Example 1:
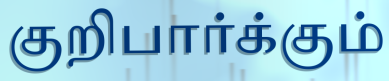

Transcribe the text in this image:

குறிபார்க்கும்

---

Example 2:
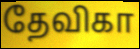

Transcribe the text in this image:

தேவிகா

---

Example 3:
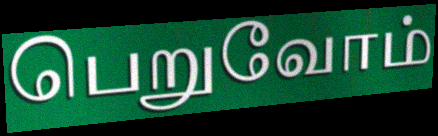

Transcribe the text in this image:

பெறுவோம்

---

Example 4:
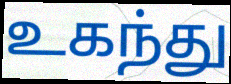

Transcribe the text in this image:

உகந்து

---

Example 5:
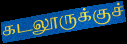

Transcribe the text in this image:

கடலூருக்குச்